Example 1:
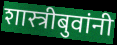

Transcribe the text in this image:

शास्त्रीबुवांनी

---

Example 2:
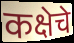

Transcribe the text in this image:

कक्षेचे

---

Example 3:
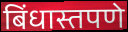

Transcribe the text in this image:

बिंधास्तपणे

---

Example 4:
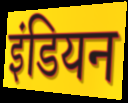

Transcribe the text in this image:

इंडियन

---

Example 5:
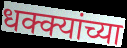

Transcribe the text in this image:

धक्क्यांच्या